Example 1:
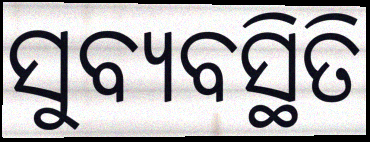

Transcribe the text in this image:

ସୁବ୍ୟବସ୍ଥିତି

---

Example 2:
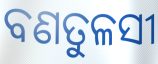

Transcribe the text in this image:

ବଣତୁଳସୀ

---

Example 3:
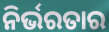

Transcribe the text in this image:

ନିର୍ଭରତାର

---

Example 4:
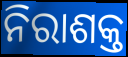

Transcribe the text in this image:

ନିରାଶକ୍ତ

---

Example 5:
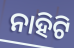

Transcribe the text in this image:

ନାହିଟି